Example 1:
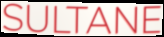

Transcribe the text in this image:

SULTANE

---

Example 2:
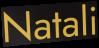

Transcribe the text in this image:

Natali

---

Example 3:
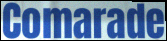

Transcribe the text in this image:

Comarade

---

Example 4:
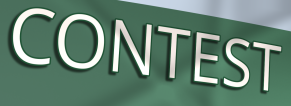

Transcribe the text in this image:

CONTEST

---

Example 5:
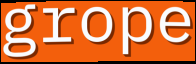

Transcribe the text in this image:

grope